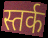
स्तर्क